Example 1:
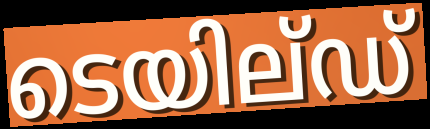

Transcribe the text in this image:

ടെയില്ഡ്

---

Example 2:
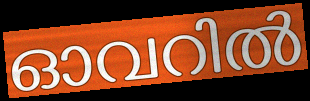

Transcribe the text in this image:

ഓവറിൽ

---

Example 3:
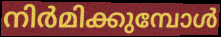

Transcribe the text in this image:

നിർമിക്കുമ്പോൾ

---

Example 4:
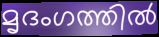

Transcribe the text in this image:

മൃദംഗത്തിൽ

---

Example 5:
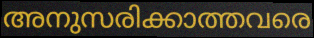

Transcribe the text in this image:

അനുസരിക്കാത്തവരെ